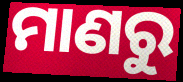
ମାଣରୁ